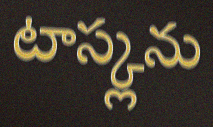
టాస్క్లను